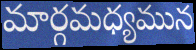
మార్గమధ్యమున